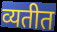
व्यतीत